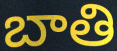
బాతి